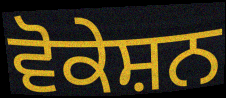
ਵੋਕੇਸ਼ਨ